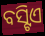
ବସ୍ଟିଏ